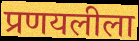
प्रणयलीला